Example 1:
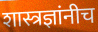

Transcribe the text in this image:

शास्त्रज्ञांनीच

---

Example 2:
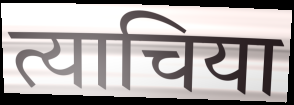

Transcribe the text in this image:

त्याचिया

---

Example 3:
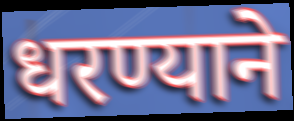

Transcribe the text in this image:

धरण्याने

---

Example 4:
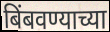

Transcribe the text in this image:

बिंबवण्याच्या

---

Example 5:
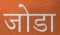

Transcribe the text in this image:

जोडा